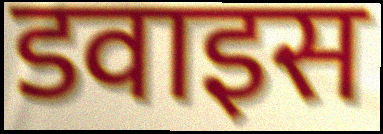
डवाइस